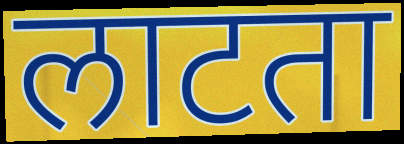
लाटता